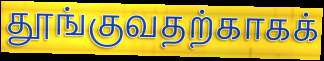
தூங்குவதற்காகக்